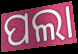
ପଲା